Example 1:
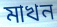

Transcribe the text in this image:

মাখন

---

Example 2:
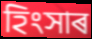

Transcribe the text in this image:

হিংসাৰ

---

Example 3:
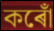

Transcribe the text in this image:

কৰোঁ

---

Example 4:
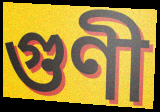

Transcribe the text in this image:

গুণী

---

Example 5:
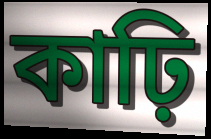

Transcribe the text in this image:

কাঢ়ি